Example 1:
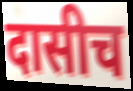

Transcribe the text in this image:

दासीच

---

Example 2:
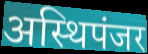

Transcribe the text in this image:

अस्थिपंजर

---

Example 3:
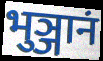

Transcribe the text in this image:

भुञ्जानं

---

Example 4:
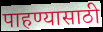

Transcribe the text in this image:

पाहण्यासाठी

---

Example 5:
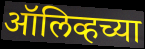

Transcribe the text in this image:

ऑलिव्हच्या